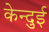
केन्दुई